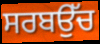
ਸਰਬਉੱਚ